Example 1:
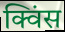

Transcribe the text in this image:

क्विंस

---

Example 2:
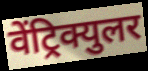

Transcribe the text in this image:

वेंट्रिक्युलर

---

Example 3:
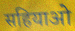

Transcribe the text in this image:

सहियाओ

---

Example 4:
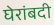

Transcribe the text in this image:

घेरांबदी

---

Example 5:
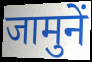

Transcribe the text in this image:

जामुनें